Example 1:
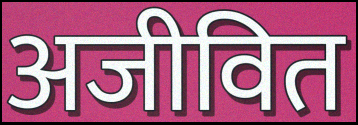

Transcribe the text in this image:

अजीवित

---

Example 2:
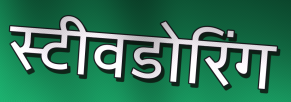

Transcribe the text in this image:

स्टीवडोरिंग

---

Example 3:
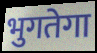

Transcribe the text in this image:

भुगतेगा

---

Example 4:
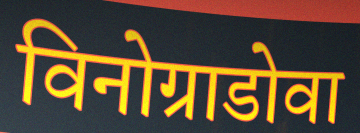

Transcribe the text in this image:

विनोग्राडोवा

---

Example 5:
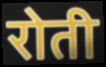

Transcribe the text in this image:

रोती